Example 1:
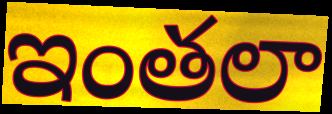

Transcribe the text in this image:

ఇంతలా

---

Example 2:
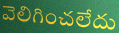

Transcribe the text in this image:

వెలిగించలేదు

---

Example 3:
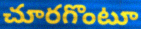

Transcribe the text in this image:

చూరగొంటూ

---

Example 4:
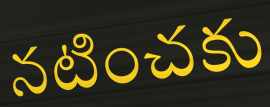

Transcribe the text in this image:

నటించకు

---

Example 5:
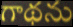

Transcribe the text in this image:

గాథను